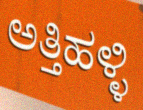
ಅತ್ತಿಹಳ್ಳಿ